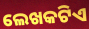
ଲେଖକଟିଏ